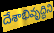
దేశాభివృద్ధిని